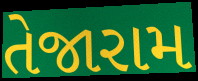
તેજારામ